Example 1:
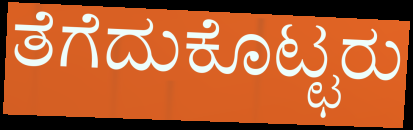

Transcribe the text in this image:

ತೆಗೆದುಕೊಟ್ಟರು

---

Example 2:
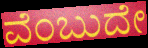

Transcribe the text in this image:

ವೆಂಬುದೇ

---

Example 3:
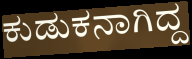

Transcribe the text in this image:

ಕುಡುಕನಾಗಿದ್ದ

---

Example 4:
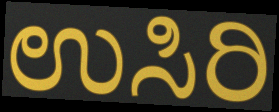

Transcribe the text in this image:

ಉಸಿರಿ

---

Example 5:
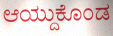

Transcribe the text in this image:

ಆಯ್ದುಕೊಂಡ